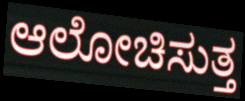
ಆಲೋಚಿಸುತ್ತ